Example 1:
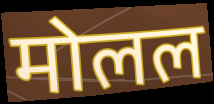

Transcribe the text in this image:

मोलल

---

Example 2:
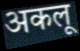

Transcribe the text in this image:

अकलू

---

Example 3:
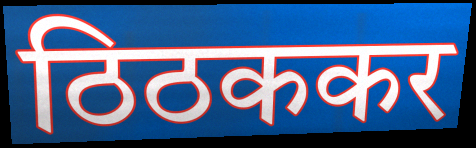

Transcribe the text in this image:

ठिठककर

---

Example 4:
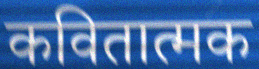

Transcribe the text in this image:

कवितात्मक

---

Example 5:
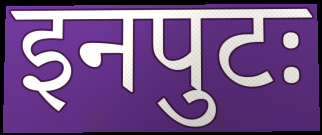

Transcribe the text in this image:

इनपुटः